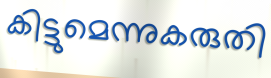
കിട്ടുമെന്നുകരുതി